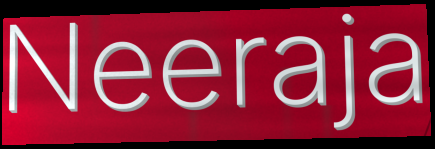
Neeraja